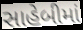
સાહેબીમાં